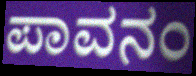
ಪಾವನಂ